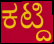
ಕಟ್ದಿ